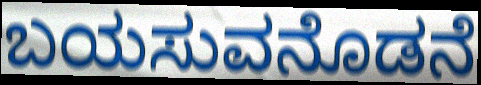
ಬಯಸುವನೊಡನೆ